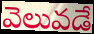
వెలువడే